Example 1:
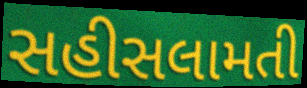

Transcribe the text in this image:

સહીસલામતી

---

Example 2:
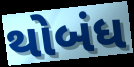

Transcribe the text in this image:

થોબંધ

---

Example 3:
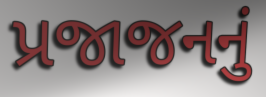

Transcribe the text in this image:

પ્રજાજનનું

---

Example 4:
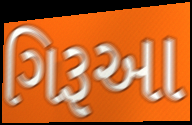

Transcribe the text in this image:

ગિરૂઆ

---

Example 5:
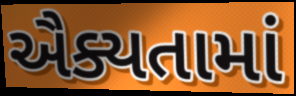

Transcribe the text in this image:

ઐક્યતામાં